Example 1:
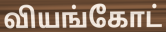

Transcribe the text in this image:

வியங்கோட்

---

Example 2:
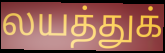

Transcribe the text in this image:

லயத்துக்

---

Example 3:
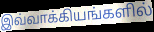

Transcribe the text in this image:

இவ்வாக்கியங்களில்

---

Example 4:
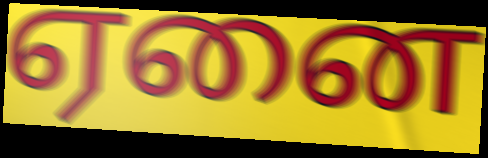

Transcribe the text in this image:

ஏனை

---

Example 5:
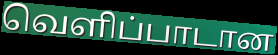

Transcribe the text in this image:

வெளிப்பாடான